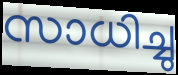
സാധിച്ചു